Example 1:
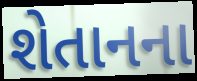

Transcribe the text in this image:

શેતાનના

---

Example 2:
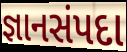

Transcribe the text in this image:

જ્ઞાનસંપદા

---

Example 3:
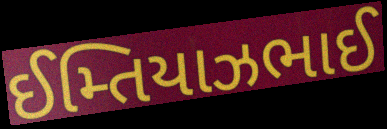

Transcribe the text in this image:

ઈમ્તિયાઝભાઈ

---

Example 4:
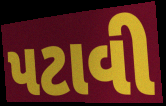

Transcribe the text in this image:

પટાવી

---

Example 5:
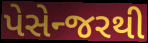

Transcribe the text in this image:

પેસેન્જરથી